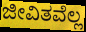
ಜೀವಿತವೆಲ್ಲ